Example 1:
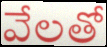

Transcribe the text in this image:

వేలతో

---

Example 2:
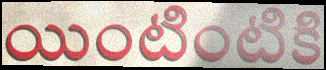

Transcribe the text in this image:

యింటింటికి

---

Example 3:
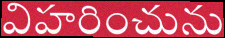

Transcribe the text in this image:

విహరించును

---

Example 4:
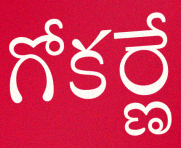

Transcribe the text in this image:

గోకర్ణే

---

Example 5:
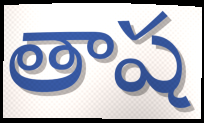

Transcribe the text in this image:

తాష